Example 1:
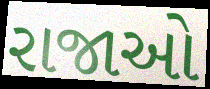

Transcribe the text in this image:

રાજાઓ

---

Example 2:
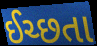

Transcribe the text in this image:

ઈચ્છતા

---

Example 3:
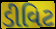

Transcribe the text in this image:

ડીવિટ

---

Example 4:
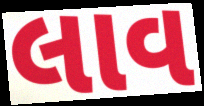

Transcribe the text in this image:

લાવ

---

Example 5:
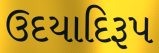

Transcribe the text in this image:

ઉદયાદિરૂપ